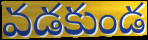
వడకుండ